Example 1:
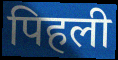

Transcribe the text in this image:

पिहली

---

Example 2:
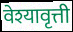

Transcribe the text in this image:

वेश्यावृत्ती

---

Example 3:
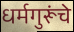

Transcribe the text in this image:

धर्मगुरूंचे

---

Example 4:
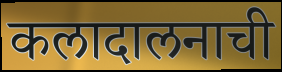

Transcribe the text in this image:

कलादालनाची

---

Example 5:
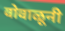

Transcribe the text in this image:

वोवाळूनी